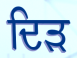
ਦਿੜ